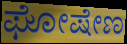
ಘೋಷೇಣ